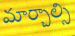
మార్చాల్సి